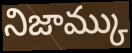
నిజామ్కు